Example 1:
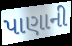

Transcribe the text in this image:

પાણાની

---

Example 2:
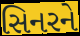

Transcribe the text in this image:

સિનરને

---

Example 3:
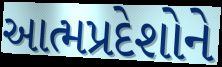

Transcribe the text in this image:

આત્મપ્રદેશોને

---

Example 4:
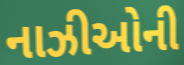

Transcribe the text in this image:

નાઝીઓની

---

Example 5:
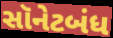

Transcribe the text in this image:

સૉનેટબંધ